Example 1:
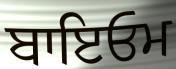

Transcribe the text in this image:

ਬਾਇਓਮ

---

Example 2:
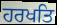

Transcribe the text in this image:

ਹਰਖਤਿ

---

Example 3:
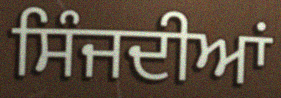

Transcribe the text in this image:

ਸਿੰਜਦੀਆਂ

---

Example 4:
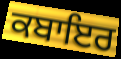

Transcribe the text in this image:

ਕਬਾਇਰ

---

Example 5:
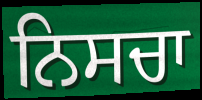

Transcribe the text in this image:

ਨਿਸਚਾ